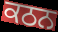
ਕਠਨ